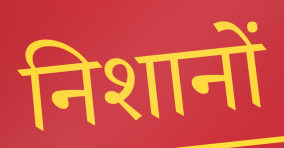
निशानों